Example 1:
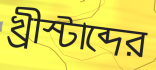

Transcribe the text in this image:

খ্রীস্টাব্দের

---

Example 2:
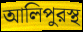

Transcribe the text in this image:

আলিপুরস্থ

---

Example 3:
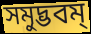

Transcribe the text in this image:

সমুদ্ভবম্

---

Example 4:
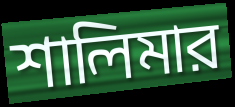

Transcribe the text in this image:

শালিমার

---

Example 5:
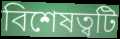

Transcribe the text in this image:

বিশেষত্বটি